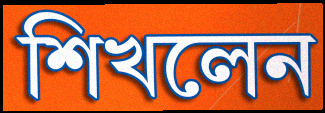
শিখলেন